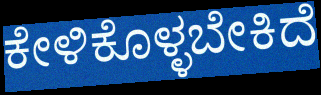
ಕೇಳಿಕೊಳ್ಳಬೇಕಿದೆ